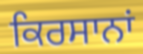
ਕਿਰਸਾਨਾਂ